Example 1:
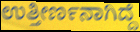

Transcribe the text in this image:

ಉತ್ತೀರ್ಣನಾಗಿದ್ದೆ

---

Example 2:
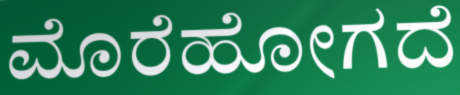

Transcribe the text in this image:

ಮೊರೆಹೋಗದೆ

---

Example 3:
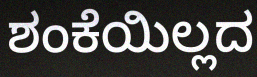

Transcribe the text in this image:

ಶಂಕೆಯಿಲ್ಲದ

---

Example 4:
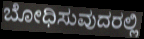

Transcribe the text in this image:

ಬೋಧಿಸುವುದರಲ್ಲಿ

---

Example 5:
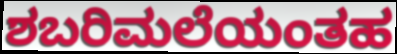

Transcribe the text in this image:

ಶಬರಿಮಲೆಯಂತಹ